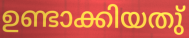
ഉണ്ടാക്കിയതു്